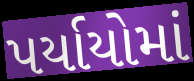
પર્યાયોમાં